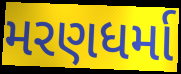
મરણધર્મા